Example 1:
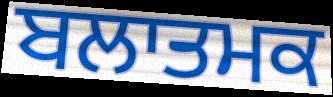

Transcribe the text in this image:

ਬਲਾਤਮਕ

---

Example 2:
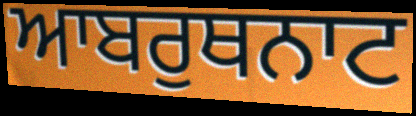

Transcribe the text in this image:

ਆਬਰੁਥਨਾਟ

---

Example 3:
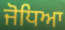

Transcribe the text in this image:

ਜੋਧਿਆ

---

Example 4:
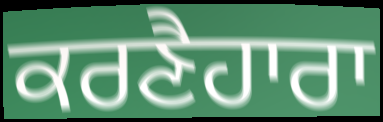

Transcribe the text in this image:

ਕਰਣੈਹਾਰਾ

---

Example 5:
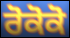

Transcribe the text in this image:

ਰੋਕੋਕੋ